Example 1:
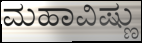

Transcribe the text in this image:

ಮಹಾವಿಷ್ಣು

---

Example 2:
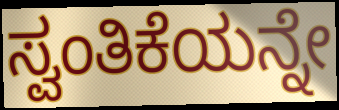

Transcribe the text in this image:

ಸ್ವಂತಿಕೆಯನ್ನೇ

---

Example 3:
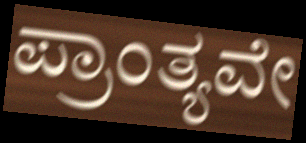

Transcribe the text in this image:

ಪ್ರಾಂತ್ಯವೇ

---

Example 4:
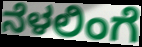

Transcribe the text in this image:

ನೆಳಲಿಂಗೆ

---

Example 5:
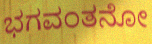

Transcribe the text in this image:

ಭಗವಂತನೋ